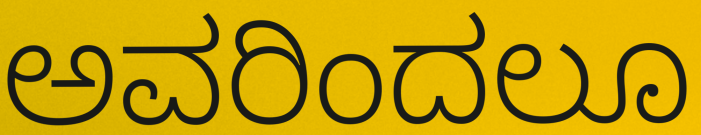
ಅವರಿಂದಲೂ